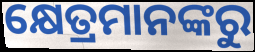
କ୍ଷେତ୍ରମାନଙ୍କରୁ